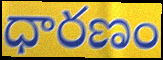
ధారణం